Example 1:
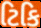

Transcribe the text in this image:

ટિકિ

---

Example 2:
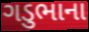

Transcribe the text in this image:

ગડુભાના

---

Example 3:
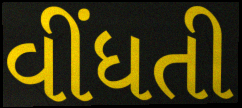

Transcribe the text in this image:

વીંધતી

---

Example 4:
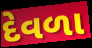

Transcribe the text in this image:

દેવળા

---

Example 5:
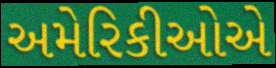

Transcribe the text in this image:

અમેરિકીઓએ